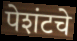
पेशंटचे